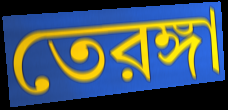
তেরঙ্গা